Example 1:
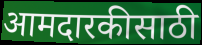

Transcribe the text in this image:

आमदारकीसाठी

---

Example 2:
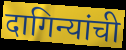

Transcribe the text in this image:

दागिन्यांची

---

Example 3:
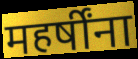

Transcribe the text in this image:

महर्षींना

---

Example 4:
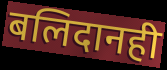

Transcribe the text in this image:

बलिदानही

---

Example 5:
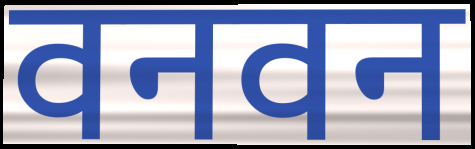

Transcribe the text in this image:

वनवन